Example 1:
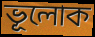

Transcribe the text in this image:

ভূলোক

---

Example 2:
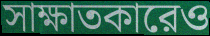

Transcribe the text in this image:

সাক্ষাতকারেও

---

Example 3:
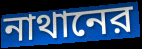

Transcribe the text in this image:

নাথানের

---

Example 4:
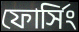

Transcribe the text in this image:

ফোর্সিং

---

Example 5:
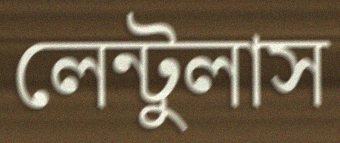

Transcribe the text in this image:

লেন্টুলাস